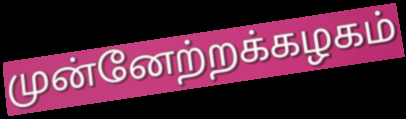
முன்னேற்றக்கழகம்